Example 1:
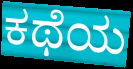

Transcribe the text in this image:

ಕಥೆಯ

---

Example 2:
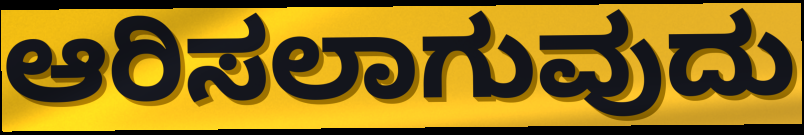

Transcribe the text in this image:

ಆರಿಸಲಾಗುವುದು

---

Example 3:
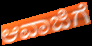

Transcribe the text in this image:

ಆವಾಜಿಗೆ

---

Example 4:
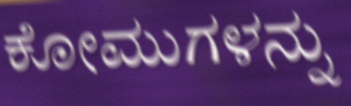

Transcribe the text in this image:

ಕೋಮುಗಳನ್ನು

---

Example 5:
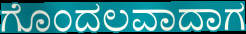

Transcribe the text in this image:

ಗೊಂದಲವಾದಾಗ